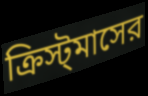
ক্রিস্ট্‌মাসের